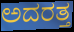
ಅದರತ್ತ